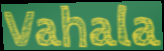
Vahala